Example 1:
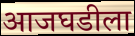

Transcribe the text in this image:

आजघडीला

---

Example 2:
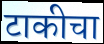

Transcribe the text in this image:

टाकीचा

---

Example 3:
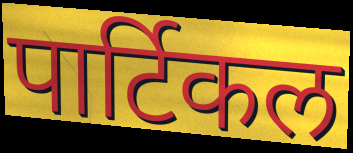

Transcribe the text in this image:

पार्टिकल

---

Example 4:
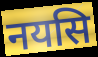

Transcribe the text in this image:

नयसि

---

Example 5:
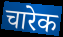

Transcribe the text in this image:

चारेक